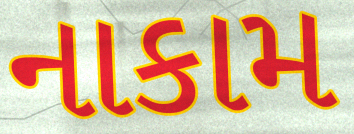
નાકામ